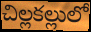
చిల్లకల్లులో